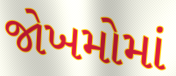
જોખમોમાં